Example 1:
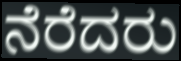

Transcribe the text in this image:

ನೆರೆದರು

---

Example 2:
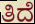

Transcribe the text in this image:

ತಿದೆ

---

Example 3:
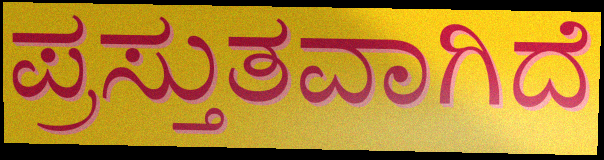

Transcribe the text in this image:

ಪ್ರಸ್ತುತವಾಗಿದೆ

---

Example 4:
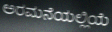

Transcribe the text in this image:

ಅರಮನೆಯಲ್ಲಿಯೆ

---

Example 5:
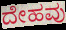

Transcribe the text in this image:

ದೇಹವು